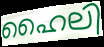
ഹൈലി